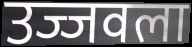
उज्‍जवला